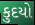
કુદયો